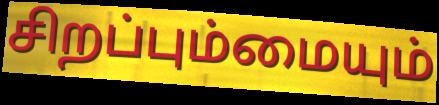
சிறப்பும்மையும்